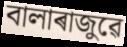
বালাৰাজুৱে